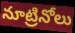
నూట్రినోలు